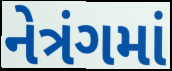
નેત્રંગમાં